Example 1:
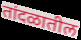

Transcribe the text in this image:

तांदळातील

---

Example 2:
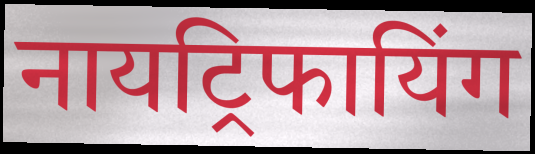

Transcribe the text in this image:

नायट्रिफायिंग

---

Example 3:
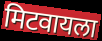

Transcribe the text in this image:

मिटवायला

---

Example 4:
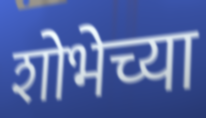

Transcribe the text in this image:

शोभेच्या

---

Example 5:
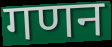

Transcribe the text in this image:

गणन